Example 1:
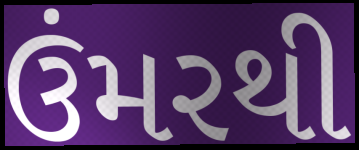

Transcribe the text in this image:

ઉંમરથી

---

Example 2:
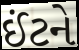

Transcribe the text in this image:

ઈંટને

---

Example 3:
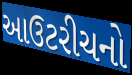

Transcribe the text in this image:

આઉટરીચનો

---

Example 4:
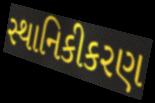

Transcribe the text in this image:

સ્થાનિકીકરણ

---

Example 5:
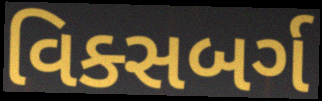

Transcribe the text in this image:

વિક્સબર્ગ